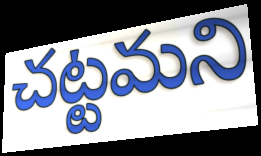
చట్టమని